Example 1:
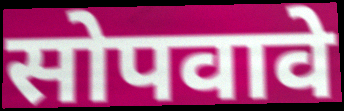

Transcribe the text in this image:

सोपवावे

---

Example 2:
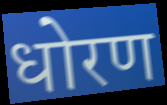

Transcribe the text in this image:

धोरण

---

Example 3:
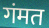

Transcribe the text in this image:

गंमत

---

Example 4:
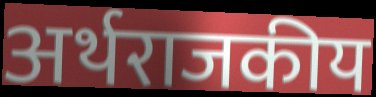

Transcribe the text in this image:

अर्थराजकीय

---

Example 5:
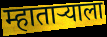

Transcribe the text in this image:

म्हाताऱ्याला